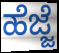
ಹೆಜ್ಜೆ